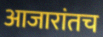
आजारांतच